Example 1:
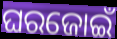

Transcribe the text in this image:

ଘରଜୋଇଁ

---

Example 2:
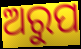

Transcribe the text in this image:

ଅରୁପ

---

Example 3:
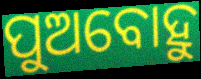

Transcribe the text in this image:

ପୁଅବୋହୁ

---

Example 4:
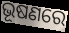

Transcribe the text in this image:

ଭୂଷଣରେ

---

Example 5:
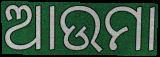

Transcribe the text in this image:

ଆଉମା